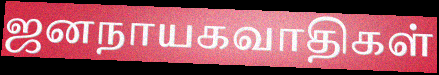
ஜனநாயகவாதிகள்